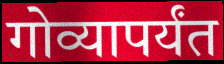
गोव्यापर्यंत